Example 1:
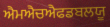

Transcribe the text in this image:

ਐਮਐਚਐਫਡਬਲਯੂ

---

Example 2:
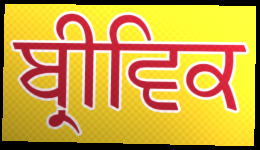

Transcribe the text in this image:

ਬ੍ਰੀਵਿਕ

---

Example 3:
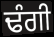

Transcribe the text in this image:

ਢੰਗੀ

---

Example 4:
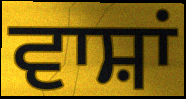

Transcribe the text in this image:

ਵਾਸ਼ਾਂ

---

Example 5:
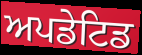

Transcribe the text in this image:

ਅਪਡੇਟਿਡ